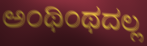
ಅಂಥಿಂಥದಲ್ಲ